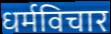
धर्मविचार